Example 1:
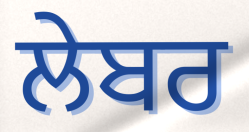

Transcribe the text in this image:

ਲੇਬਰ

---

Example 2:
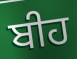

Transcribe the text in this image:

ਬੀਹ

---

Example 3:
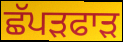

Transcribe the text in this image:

ਛੱਪੜਫਾੜ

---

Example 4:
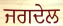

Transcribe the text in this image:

ਜਗਦੇਲ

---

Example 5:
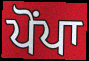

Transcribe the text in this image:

ਪੋਂਪਾ